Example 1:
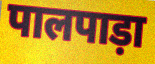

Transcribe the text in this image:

पालपाड़ा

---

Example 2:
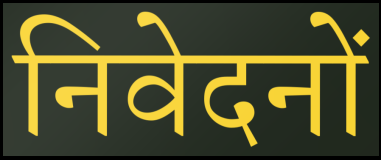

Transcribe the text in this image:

निवेदनों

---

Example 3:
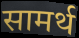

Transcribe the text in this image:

सामर्थ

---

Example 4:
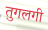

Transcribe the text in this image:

तुगलगी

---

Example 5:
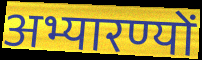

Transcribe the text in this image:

अभ्यारण्यों